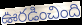
ఊరడించింది